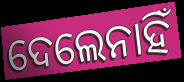
ଦେଲେନାହିଁ